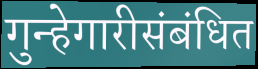
गुन्हेगारीसंबंधित